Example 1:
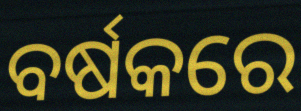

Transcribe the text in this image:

ବର୍ଷକରେ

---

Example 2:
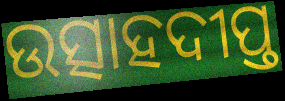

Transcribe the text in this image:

ଉତ୍ସାହଦୀପ୍ତ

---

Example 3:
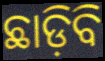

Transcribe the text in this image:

ଛାଡ଼ିବି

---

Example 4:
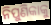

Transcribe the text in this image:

ନିପୁଣିକାକୁ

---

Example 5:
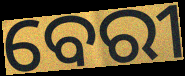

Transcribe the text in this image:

ବେରୀ